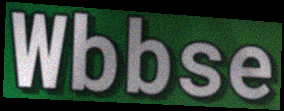
Wbbse